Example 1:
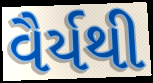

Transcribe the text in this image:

વૈર્યથી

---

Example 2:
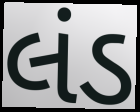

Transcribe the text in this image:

લંડ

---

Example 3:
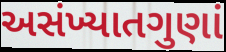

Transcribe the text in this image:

અસંખ્યાતગુણાં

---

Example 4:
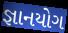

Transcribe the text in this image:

જ્ઞાનયોગ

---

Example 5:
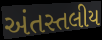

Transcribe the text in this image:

અંતસ્તલીય